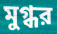
মুগ্ধর